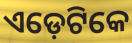
ଏଡ଼େଟିକେ